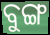
ବୁଙ୍ଗ